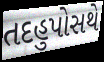
તદહુપોસથે